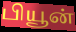
பியூன்